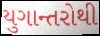
યુગાન્તરોથી